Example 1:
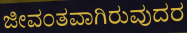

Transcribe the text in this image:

ಜೀವಂತವಾಗಿರುವುದರ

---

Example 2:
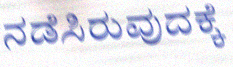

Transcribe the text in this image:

ನಡೆಸಿರುವುದಕ್ಕೆ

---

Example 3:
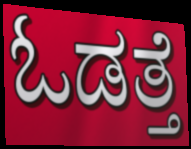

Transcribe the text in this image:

ಓಡತ್ತೆ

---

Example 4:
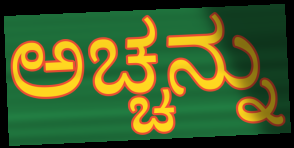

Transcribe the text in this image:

ಅಚ್ಚನ್ನು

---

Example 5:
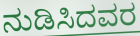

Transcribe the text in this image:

ನುಡಿಸಿದವರ